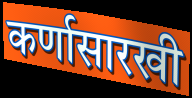
कर्णासारखी